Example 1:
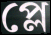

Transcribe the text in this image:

প্লে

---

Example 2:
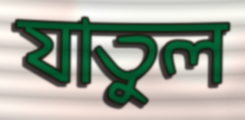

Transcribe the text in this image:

যাতুল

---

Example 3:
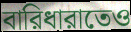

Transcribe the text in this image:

বারিধারাতেও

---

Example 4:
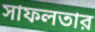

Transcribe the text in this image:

সাফলতার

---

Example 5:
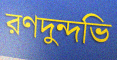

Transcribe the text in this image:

রণদুন্দভি